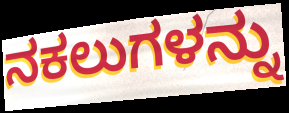
ನಕಲುಗಳನ್ನು